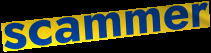
scammer